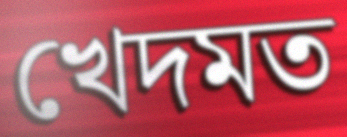
খেদমত